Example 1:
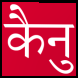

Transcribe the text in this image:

कैनु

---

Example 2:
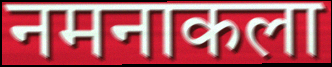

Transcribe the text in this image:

नमनाकला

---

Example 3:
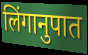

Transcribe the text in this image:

लिंगानुपात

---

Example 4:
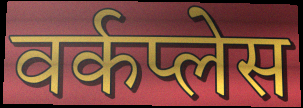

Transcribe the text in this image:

वर्कप्लेस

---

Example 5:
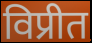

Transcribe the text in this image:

विप्रीत